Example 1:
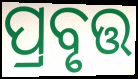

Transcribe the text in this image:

ପ୍ରବୃତ୍ତ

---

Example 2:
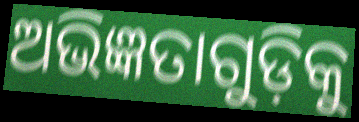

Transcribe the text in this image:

ଅଭିଜ୍ଞତାଗୁଡ଼ିକୁ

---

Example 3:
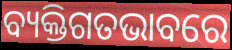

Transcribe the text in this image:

ବ୍ୟକ୍ତିଗତଭାବରେ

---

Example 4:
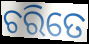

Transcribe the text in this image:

ଚରିତେ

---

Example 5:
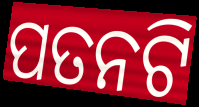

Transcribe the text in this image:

ପତନଟି